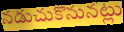
నడుచుకొనునట్లు